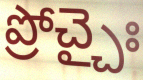
ప్రోచ్చైః